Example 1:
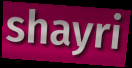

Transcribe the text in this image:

shayri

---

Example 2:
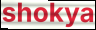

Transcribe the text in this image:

shokya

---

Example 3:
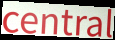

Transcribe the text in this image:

central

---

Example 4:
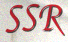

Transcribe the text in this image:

SSR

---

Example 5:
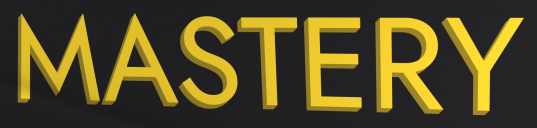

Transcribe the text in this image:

MASTERY